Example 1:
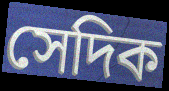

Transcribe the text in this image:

সেদিক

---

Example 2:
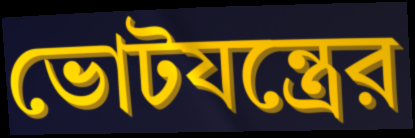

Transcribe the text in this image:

ভোটযন্ত্রের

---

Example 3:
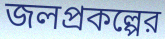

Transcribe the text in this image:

জলপ্রকল্পের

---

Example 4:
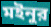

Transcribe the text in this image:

মইনুর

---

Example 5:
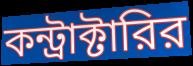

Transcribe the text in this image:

কন্ট্রাক্টারির